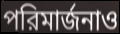
পরিমার্জনাও